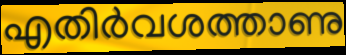
എതിർവശത്താണു